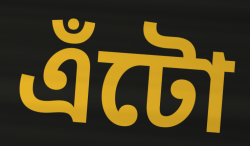
এঁটো